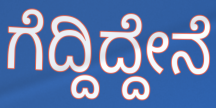
ಗೆದ್ದಿದ್ದೇನೆ